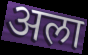
अला